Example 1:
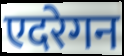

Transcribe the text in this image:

एदरेगन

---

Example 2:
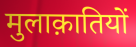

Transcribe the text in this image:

मुलाक़ातियों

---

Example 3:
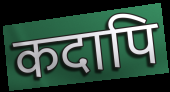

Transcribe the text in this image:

कदापि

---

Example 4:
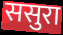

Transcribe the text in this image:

ससुरा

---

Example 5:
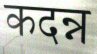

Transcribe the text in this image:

कदन्न